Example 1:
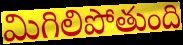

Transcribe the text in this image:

మిగిలిపోతుంది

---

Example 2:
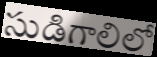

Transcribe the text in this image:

సుడిగాలిలో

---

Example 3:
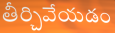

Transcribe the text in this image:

తీర్చివేయడం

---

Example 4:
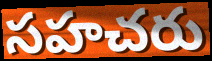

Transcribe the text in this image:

సహచరు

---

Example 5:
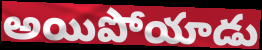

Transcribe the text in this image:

అయిపోయాడు